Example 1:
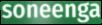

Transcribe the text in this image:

soneenga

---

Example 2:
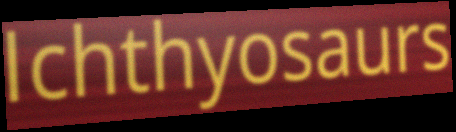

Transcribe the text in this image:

Ichthyosaurs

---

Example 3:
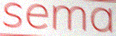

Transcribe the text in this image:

sema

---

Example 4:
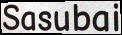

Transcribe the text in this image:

Sasubai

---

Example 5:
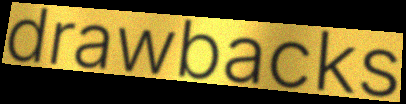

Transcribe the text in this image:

drawbacks